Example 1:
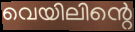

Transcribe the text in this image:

വെയിലിന്റെ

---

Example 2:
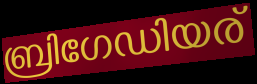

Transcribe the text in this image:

ബ്രിഗേഡിയര്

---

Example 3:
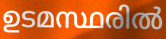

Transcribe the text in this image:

ഉടമസ്ഥരിൽ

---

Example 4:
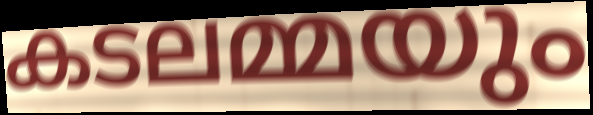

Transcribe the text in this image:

കടലമ്മയും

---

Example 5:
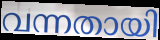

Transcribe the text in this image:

വന്നതായി